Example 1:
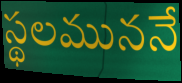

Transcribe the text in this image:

స్థలముననే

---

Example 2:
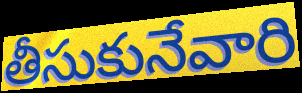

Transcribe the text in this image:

తీసుకునేవారి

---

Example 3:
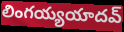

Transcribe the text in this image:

లింగయ్యయాదవ్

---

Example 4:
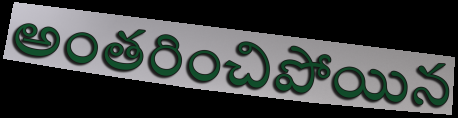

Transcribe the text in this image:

అంతరించిపోయిన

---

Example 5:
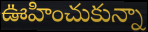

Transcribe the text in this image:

ఊహించుకున్నా